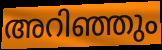
അറിഞ്ഞും